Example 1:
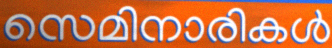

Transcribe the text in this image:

സെമിനാരികൾ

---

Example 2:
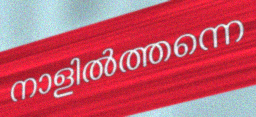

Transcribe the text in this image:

നാളിൽത്തന്നെ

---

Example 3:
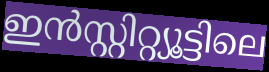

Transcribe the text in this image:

ഇൻസ്റ്റിറ്റ്യൂട്ടിലെ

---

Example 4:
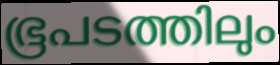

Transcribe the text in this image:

ഭൂപടത്തിലും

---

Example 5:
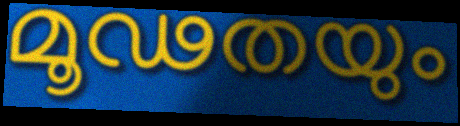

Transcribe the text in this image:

മൂഢതയും